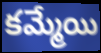
కమ్మేయి